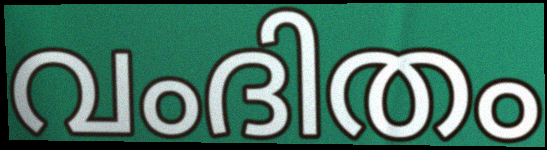
വംദിതം